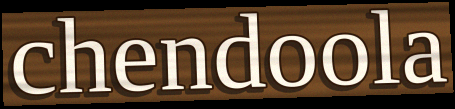
chendoola